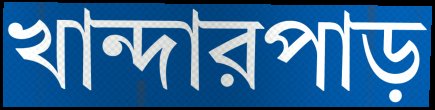
খান্দারপাড়